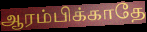
ஆரம்பிக்காதே